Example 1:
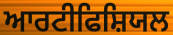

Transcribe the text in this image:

ਆਰਟੀਫਿਸ਼ਿਯਲ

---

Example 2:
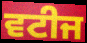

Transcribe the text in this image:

ਵਟੀਜ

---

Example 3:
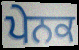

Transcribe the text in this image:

ਪੇਨਕ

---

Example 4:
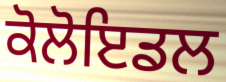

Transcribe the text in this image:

ਕੋਲੋਇਡਲ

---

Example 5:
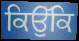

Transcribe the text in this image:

ਕਿਉੱਕਿ